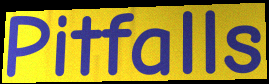
Pitfalls